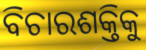
ବିଚାରଶକ୍ତିକୁ